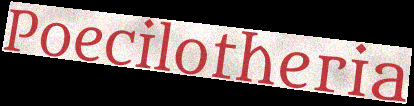
Poecilotheria